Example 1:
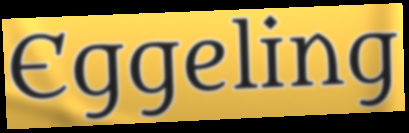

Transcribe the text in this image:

Eggeling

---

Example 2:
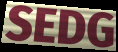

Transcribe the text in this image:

SEDG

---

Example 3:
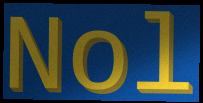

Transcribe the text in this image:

Nol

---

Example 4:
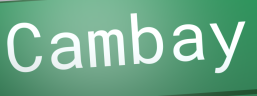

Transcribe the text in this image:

Cambay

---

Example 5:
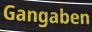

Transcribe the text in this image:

Gangaben